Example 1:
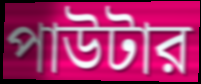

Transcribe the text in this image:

পাউটার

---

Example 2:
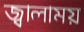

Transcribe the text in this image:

জ্বালাময়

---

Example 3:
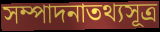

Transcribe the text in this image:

সম্পাদনাতথ্যসূত্র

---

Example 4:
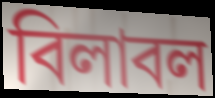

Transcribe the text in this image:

বিলাবল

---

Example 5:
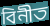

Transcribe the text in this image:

বিনীত